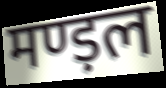
मण्ड़ल